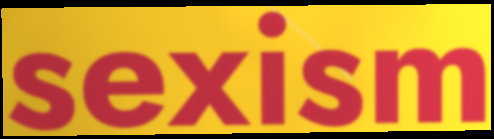
sexism